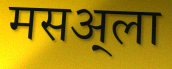
मसअ्ला